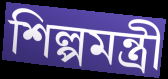
শিল্পমন্ত্রী